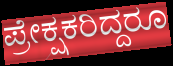
ಪ್ರೇಕ್ಷಕರಿದ್ದರೂ